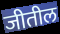
जीतील